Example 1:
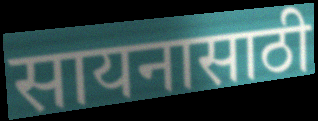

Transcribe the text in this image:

सायनासाठी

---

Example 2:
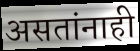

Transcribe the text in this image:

असतांनाही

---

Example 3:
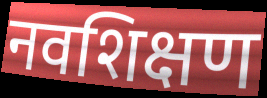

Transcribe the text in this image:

नवशिक्षण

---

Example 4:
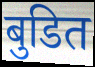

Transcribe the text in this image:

बुडित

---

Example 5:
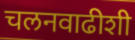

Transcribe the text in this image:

चलनवाढीशी